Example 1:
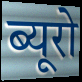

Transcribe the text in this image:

ब्यूरो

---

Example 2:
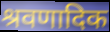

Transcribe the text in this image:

श्रवणादिक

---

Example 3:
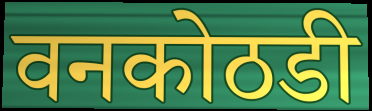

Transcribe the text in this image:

वनकोठडी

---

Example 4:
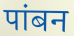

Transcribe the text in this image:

पांबन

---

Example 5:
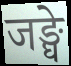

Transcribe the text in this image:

जङ्घे